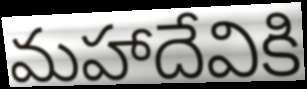
మహాదేవికి